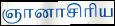
ஞானாசிரிய